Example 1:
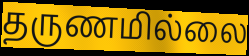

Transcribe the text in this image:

தருணமில்லை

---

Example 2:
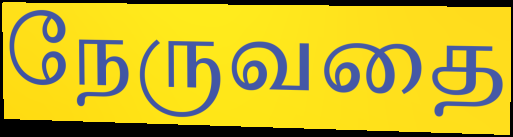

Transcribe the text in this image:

நேருவதை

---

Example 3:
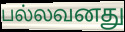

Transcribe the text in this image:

பல்லவனது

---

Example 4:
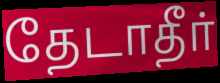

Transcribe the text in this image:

தேடாதீர்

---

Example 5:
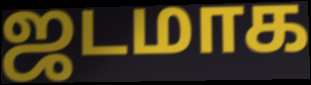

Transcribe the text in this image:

ஜடமாக